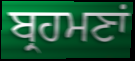
ਬ੍ਰਹਮਣਾਂ